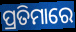
ପ୍ରତିମାରେ